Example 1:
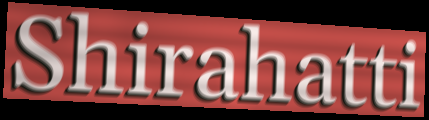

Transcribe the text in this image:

Shirahatti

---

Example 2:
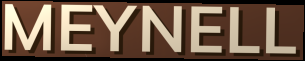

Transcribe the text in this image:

MEYNELL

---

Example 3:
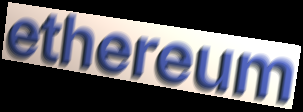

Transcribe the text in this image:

ethereum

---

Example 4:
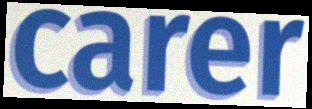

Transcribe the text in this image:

carer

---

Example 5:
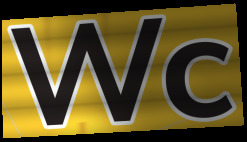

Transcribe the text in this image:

Wc